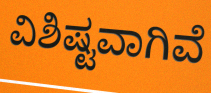
ವಿಶಿಷ್ಟವಾಗಿವೆ